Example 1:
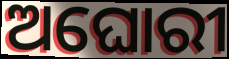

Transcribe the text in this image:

ଅଘୋରୀ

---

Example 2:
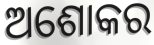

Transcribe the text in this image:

ଅଶୋକର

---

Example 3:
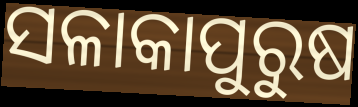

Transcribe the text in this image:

ସଳାକାପୁରୁଷ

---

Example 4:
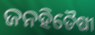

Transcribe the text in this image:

ଜନହିତୈଷୀ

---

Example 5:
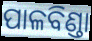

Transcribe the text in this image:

ପାଳବିଣ୍ଡା